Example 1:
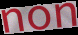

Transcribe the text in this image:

non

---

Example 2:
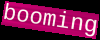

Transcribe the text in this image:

booming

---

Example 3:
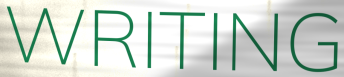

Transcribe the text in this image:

WRITING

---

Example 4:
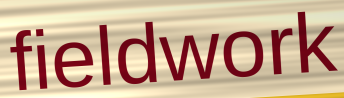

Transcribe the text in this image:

fieldwork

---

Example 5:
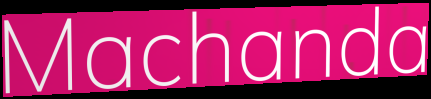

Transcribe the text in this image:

Machanda